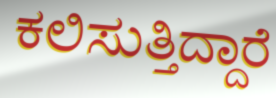
ಕಲಿಸುತ್ತಿದ್ದಾರೆ